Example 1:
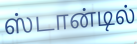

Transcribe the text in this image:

ஸ்டான்டில்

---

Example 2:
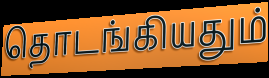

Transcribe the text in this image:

தொடங்கியதும்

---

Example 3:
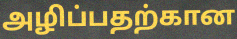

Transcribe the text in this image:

அழிப்பதற்கான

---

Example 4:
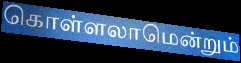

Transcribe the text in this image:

கொள்ளலாமென்றும்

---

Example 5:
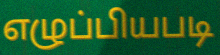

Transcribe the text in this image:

எழுப்பியபடி